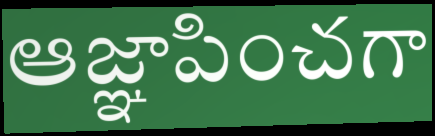
ఆజ్ఞాపించగా